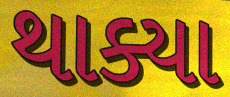
થાક્યા